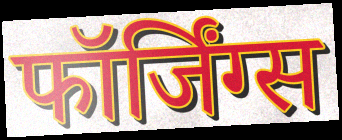
फॉर्जिंग्स